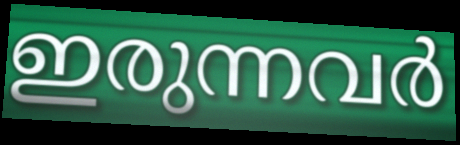
ഇരുന്നവർ